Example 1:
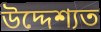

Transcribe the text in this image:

উদ্দেশ্যত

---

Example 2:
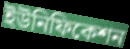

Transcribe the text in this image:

ইউনিফিকেশন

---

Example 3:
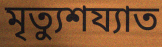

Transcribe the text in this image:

মৃত্যুশয্যাত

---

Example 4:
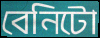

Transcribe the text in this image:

বেনিটো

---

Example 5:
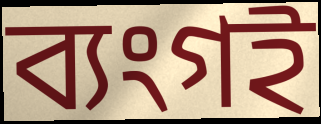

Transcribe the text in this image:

ব্যংগই